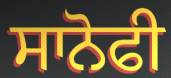
ਸਾਨੋਫੀ